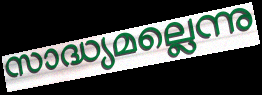
സാദ്ധ്യമല്ലെന്നു